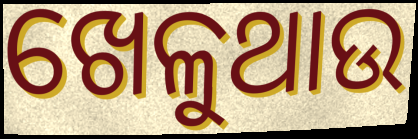
ଖେଳୁଥାଉ